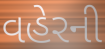
વહેરની